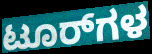
ಟೂರ್‌ಗಳ